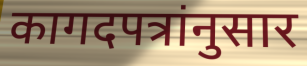
कागदपत्रांनुसार